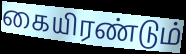
கையிரண்டும்